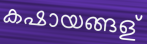
കഷായങ്ങള്